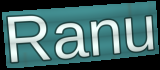
Ranu